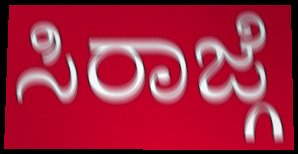
ಸಿರಾಜ್ಗೆ